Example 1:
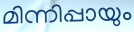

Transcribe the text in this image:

മിന്നിപ്പായും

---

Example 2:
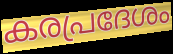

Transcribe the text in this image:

കരപ്രദേശം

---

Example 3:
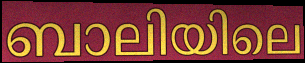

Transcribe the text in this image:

ബാലിയിലെ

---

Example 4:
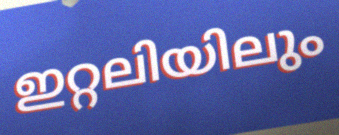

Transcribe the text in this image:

ഇറ്റലിയിലും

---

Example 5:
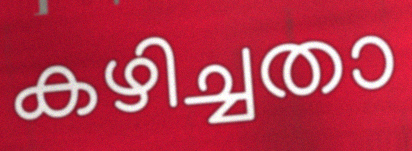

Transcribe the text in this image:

കഴിച്ചതാ